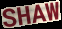
SHAW